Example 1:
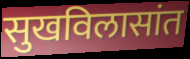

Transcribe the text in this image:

सुखविलासांत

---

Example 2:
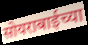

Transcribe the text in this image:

सोयराबाईच्या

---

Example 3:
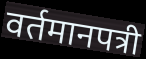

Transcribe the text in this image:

वर्तमानपत्री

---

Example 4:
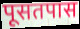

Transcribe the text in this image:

पूसतपास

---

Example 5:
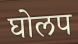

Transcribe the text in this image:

घोलप